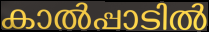
കാൽപ്പാടിൽ